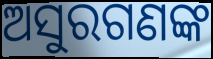
ଅସୁରଗଣଙ୍କ